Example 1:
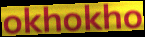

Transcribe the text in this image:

okhokho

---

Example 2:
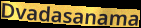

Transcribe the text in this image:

Dvadasanama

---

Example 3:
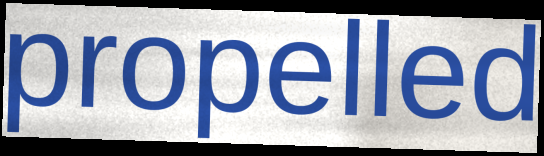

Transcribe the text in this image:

propelled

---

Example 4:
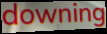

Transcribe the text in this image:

downing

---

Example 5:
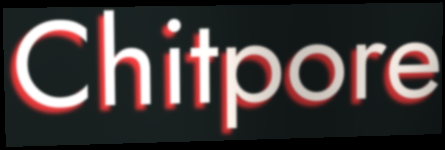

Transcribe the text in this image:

Chitpore